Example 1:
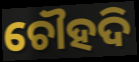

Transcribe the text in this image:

ଚୌହଦି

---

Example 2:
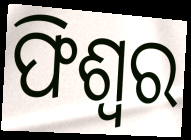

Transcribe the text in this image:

ଫିଶ୍ୱର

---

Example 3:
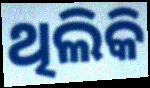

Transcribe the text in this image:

ଥିଲିକି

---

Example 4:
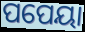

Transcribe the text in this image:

ପପେୟା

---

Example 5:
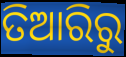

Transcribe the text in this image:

ତିଆରିରୁ